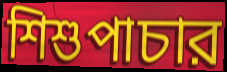
শিশুপাচার